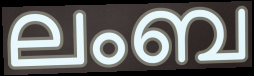
ലംബ